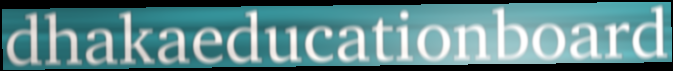
dhakaeducationboard